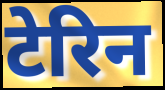
टेरिन